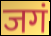
जगं